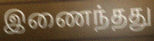
இணைந்தது